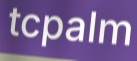
tcpalm